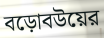
বড়োবউয়ের